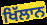
ਖਿੱਲਾਨ